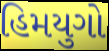
હિમયુગો